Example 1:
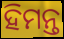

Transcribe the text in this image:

ହିମନ୍ତ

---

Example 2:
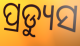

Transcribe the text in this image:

ପ୍ରଡ୍ୟୁସ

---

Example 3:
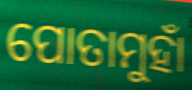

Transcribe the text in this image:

ପୋତାମୁହାଁ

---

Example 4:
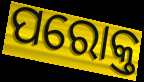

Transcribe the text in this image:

ପରୋକ୍ତ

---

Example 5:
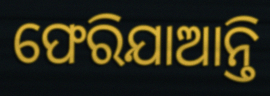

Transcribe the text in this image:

ଫେରିଯାଆନ୍ତି